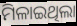
ମିଳାଇଥିଲା